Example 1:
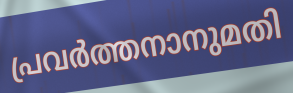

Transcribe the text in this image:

പ്രവർത്തനാനുമതി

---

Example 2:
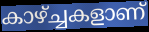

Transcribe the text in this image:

കാഴ്ച്ചകളാണ്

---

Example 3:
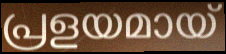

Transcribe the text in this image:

പ്രളയമായ്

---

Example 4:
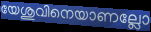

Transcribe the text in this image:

യേശുവിനെയാണല്ലോ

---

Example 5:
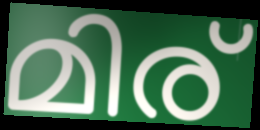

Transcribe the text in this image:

മിര്